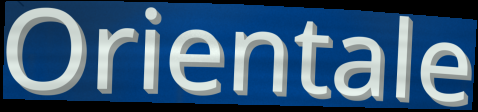
Orientale